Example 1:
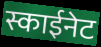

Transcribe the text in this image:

स्काईनेट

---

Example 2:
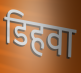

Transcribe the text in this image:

डिहवा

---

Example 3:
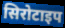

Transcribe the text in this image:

सिरोटाइप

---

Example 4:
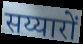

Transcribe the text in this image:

सय्यारों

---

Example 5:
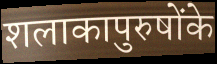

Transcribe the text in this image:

शलाकापुरुषोंके